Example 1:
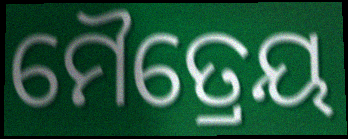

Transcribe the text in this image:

ମୈତ୍ରେୟ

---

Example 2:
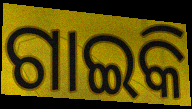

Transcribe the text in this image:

ଗାଇକି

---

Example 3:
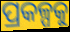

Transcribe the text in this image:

ପ୍ରକଳ୍ପକୁ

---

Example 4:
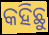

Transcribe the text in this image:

କହିଛୁ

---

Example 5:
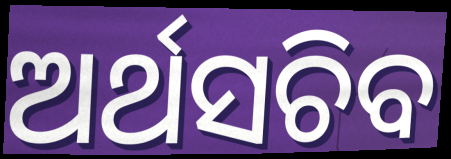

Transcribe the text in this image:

ଅର୍ଥସଚିବ